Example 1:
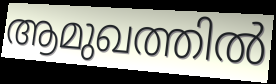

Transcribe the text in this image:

ആമുഖത്തിൽ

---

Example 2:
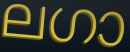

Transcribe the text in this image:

ലഗാ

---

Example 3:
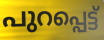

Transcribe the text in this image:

പുറപ്പെട്ട്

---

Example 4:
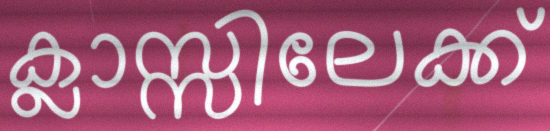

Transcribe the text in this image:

ക്ലാസ്സിലേക്ക്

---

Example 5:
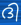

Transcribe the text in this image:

ദി